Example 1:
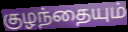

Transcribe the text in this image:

குழந்தையும்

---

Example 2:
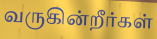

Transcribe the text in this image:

வருகின்றீர்கள்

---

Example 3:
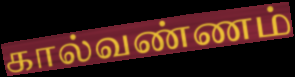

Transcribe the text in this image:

கால்வண்ணம்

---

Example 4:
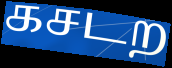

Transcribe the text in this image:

கசடற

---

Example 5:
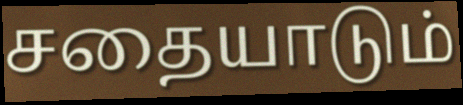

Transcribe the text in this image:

சதையாடும்